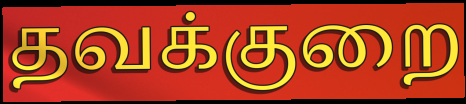
தவக்குறை